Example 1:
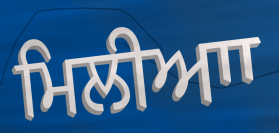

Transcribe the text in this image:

ਮਿਲੀਆਾ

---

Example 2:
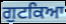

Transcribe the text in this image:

ਗੁਟਕਿਆ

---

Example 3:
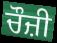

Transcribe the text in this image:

ਚੌਜ਼ੀ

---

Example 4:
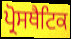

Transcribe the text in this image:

ਪ੍ਰੋਸਥੈਟਿਕ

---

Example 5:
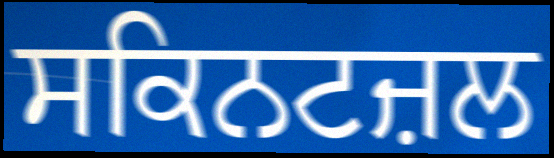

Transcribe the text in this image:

ਸਕਿਨਟਜ਼ਲ